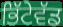
ਭਿੱਟੇਵੱਡ